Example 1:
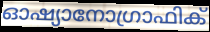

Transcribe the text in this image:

ഓഷ്യാനോഗ്രാഫിക്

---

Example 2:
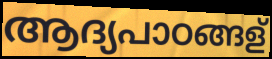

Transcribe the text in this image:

ആദ്യപാഠങ്ങള്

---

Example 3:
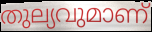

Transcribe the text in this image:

തുല്യവുമാണ്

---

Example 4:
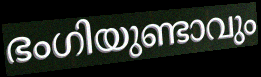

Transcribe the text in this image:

ഭംഗിയുണ്ടാവും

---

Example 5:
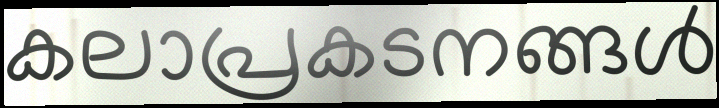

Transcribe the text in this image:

കലാപ്രകടനങ്ങൾ